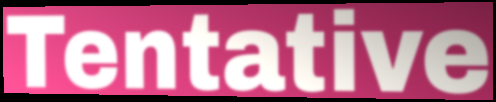
Tentative